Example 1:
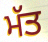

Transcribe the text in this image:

ਮੱਤ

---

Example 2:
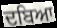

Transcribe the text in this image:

ਦਬਿਆ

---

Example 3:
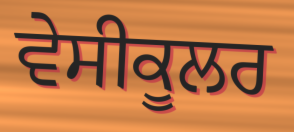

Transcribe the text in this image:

ਵੇਸੀਕੂਲਰ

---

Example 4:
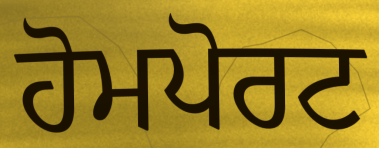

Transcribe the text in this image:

ਹੋਮਪੋਰਟ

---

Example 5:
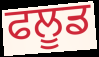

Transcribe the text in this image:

ਫਲੂਡ